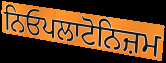
ਨਿਓਪਲਾਟੋਨਿਜ਼ਮ